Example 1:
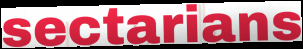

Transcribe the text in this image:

sectarians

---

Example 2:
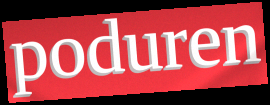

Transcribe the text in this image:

poduren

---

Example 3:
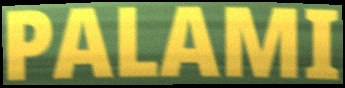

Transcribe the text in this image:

PALAMI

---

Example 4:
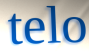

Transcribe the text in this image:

telo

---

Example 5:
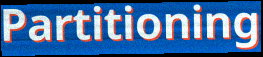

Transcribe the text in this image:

Partitioning